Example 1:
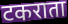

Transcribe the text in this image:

टकराता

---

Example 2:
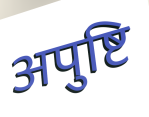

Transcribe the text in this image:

अपुष्टि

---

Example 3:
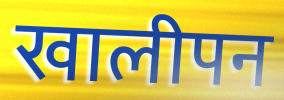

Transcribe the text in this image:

खालीपन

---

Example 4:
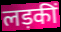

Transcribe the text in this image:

लड़कीं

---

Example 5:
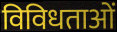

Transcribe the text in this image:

विविधताओं